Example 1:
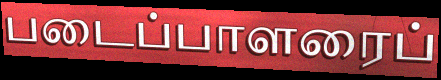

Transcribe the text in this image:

படைப்பாளரைப்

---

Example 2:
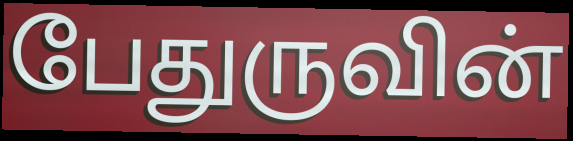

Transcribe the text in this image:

பேதுருவின்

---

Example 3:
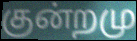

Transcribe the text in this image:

குன்றமு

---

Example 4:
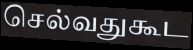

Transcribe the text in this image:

செல்வதுகூட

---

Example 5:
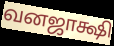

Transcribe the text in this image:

வனஜாக்ஷி